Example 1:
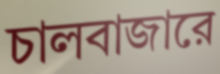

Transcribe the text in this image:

চালবাজারে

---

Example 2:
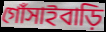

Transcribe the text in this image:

গোঁসাইবাড়ি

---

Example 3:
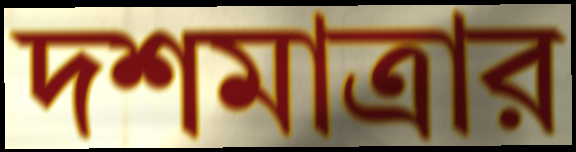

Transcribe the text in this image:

দশমাত্রার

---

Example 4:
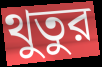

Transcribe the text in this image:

থুতুর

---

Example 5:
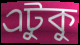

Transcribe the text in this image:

এটুকু